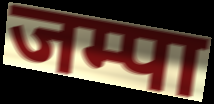
जम्पा